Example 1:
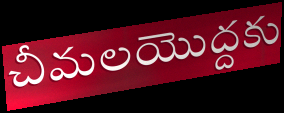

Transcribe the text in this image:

చీమలయొద్దకు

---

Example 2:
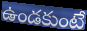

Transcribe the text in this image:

ఉండకుంటే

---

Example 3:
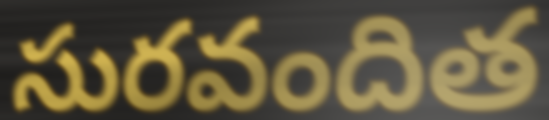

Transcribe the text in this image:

సురవందిత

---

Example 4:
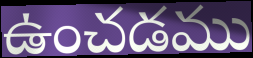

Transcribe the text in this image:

ఉంచడము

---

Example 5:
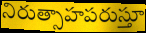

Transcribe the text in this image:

నిరుత్సాహపరుస్తూ